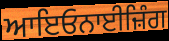
ਆਇਓਨਾਈਜ਼ਿੰਗ